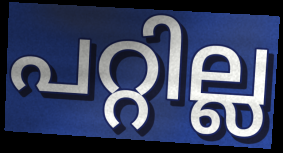
പറ്റില്ല